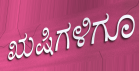
ಋಷಿಗಳಿಗೂ